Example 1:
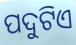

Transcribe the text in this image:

ପଦୁଟିଏ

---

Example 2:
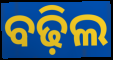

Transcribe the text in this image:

ବଢ଼ିଲ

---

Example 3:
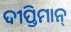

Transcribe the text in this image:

ଦୀପ୍ତିମାନ୍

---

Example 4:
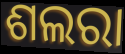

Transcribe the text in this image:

ଶଲରା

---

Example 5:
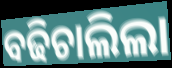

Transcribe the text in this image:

ବଢିଚାଲିଲା